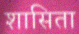
शासिता